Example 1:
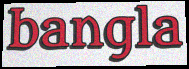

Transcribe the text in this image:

bangla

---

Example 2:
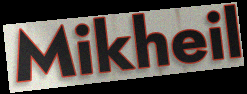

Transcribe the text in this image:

Mikheil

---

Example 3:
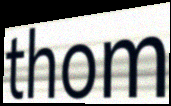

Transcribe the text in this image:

thom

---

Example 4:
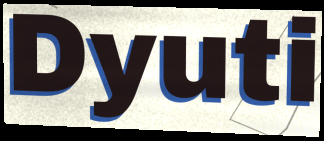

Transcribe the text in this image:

Dyuti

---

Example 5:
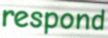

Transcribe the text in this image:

respond